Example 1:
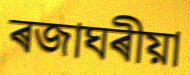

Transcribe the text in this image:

ৰজাঘৰীয়া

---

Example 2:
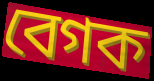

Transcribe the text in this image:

বেগক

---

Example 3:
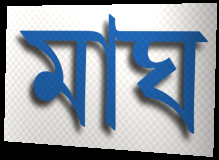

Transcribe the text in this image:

মাঘ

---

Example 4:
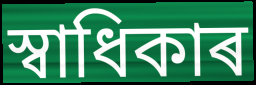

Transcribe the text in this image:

স্বাধিকাৰ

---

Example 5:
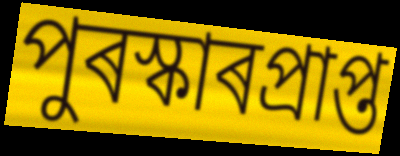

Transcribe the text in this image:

পুৰস্কাৰপ্ৰাপ্ত